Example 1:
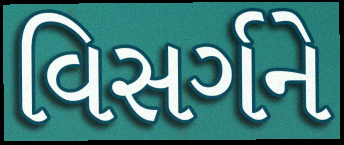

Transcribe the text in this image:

વિસર્ગને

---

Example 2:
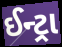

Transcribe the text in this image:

ઈન્ટ્રા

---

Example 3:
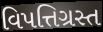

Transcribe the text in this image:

વિપત્તિગ્રસ્ત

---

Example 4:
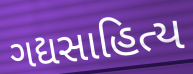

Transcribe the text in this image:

ગદ્યસાહિત્ય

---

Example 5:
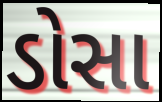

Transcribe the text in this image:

ડોસા